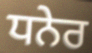
ਧਨੇਰ